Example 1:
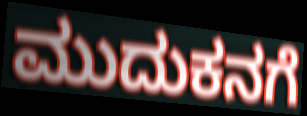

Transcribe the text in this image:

ಮುದುಕನಗೆ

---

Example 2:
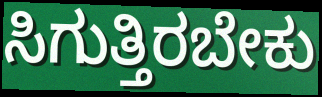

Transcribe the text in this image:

ಸಿಗುತ್ತಿರಬೇಕು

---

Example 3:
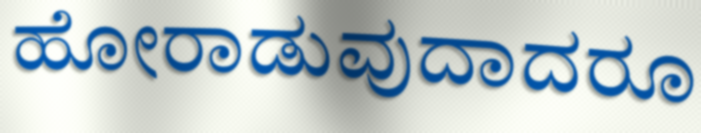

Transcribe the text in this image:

ಹೋರಾಡುವುದಾದರೂ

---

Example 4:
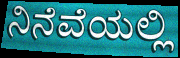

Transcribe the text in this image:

ನಿನೆವೆಯಲ್ಲಿ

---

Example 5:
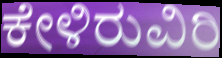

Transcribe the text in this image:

ಕೇಳಿರುವಿರಿ